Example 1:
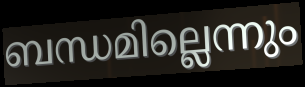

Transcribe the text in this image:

ബന്ധമില്ലെന്നും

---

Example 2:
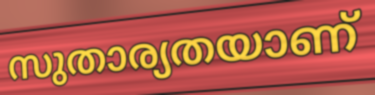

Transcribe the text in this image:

സുതാര്യതയാണ്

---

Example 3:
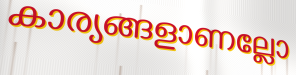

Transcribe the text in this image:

കാര്യങ്ങളാണല്ലോ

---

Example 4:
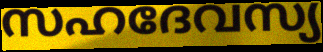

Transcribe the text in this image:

സഹദേവസ്യ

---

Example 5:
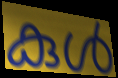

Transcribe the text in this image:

കുൾ